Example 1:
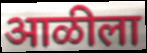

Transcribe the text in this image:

आळीला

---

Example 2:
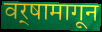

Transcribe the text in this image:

वर्षामागून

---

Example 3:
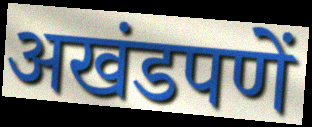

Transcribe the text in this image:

अखंडपणें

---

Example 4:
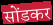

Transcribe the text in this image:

सोंडकर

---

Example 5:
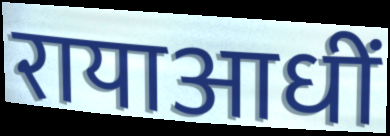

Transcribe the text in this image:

रायाआधीं